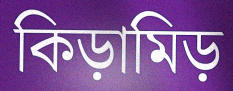
কিড়ামিড়